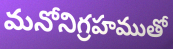
మనోనిగ్రహముతో